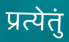
प्रत्येतुं